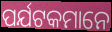
ପର୍ଯଟକମାନେ